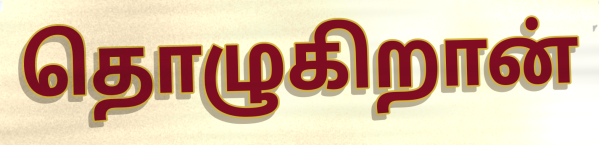
தொழுகிறான்